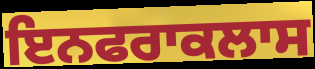
ਇਨਫਰਾਕਲਾਸ